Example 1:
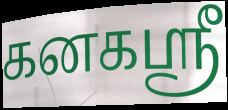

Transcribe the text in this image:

கனகஸ்ரீ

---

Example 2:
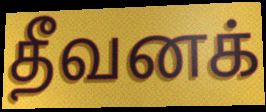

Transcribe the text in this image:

தீவனக்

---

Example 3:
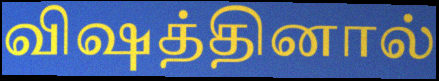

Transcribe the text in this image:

விஷத்தினால்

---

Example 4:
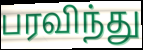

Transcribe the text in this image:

பரவிந்து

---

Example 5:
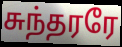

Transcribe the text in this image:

சுந்தரரே